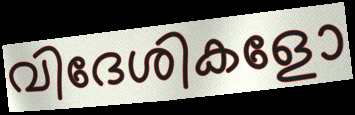
വിദേശികളോ